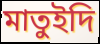
মাতুইদি